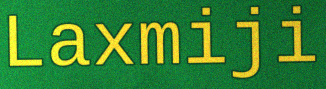
Laxmiji